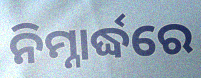
ନିମ୍ନାର୍ଦ୍ଧରେ